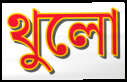
থুলো